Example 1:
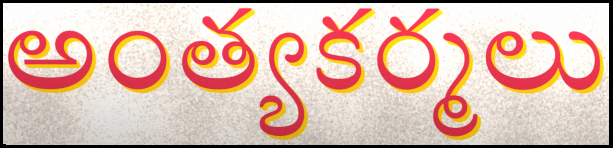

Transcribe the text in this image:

అంత్యకర్మలు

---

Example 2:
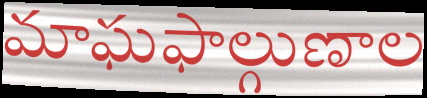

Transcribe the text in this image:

మాఘఫాల్గుణాల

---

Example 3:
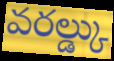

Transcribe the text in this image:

వరల్డ్కు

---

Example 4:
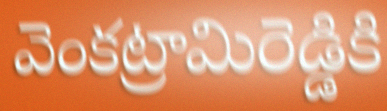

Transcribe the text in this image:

వెంకట్రామిరెడ్డికి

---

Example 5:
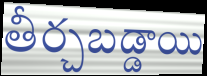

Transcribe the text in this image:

తీర్చబడ్డాయి